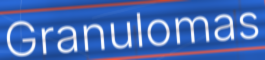
Granulomas